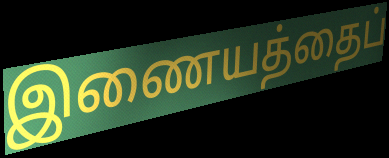
இணையத்தைப்